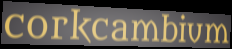
corkcambium